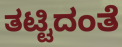
ತಟ್ಟಿದಂತೆ